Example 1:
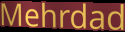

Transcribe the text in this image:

Mehrdad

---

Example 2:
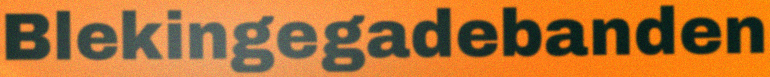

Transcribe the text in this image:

Blekingegadebanden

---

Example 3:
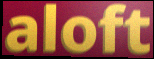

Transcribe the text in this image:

aloft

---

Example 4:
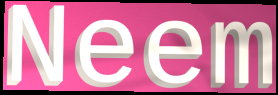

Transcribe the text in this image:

Neem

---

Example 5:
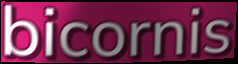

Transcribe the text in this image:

bicornis